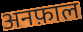
अनफ़ाल